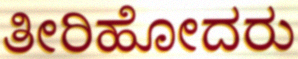
ತೀರಿಹೋದರು